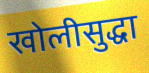
खोलीसुद्धा